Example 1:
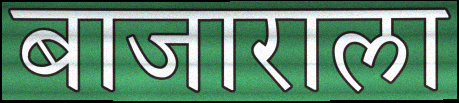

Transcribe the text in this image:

बाजाराला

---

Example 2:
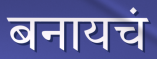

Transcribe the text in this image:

बनायचं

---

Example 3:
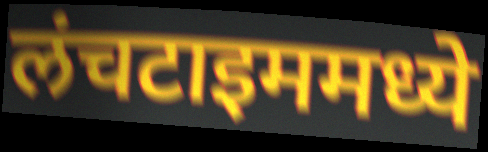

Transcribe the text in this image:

लंचटाइममध्ये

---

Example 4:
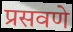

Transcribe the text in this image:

प्रसवणे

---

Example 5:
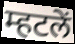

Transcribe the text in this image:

म्हटलें